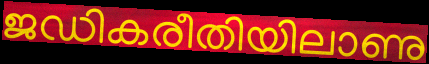
ജഡികരീതിയിലാണു